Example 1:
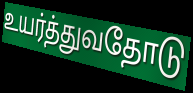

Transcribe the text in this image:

உயர்த்துவதோடு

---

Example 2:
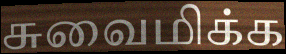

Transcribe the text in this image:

சுவைமிக்க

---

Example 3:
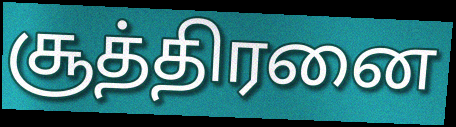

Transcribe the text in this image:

சூத்திரனை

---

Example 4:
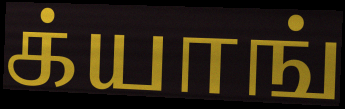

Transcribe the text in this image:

க்யாங்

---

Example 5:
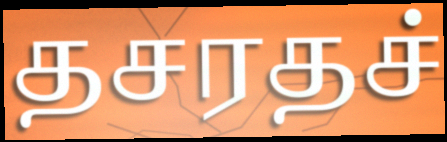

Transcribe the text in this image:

தசரதச்